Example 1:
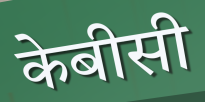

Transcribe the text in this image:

केबीसी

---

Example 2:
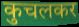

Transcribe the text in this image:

कुचलकर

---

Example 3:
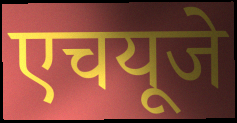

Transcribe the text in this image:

एचयूजे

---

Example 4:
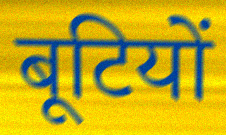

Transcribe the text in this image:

बूटियों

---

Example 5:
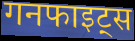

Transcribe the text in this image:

गनफाइट्स